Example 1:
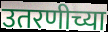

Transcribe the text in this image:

उतरणीच्या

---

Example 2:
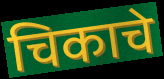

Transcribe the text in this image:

चिकाचे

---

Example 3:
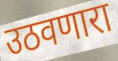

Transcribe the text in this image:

उठवणारा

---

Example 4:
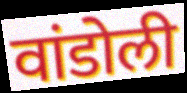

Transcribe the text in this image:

वांडोली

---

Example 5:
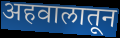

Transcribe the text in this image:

अहवालातून